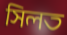
সিলত